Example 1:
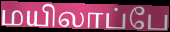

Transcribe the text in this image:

மயிலாப்பே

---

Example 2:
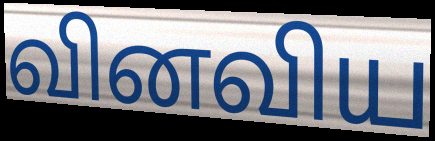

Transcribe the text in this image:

வினவிய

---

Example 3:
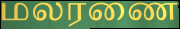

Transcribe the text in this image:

மலரணை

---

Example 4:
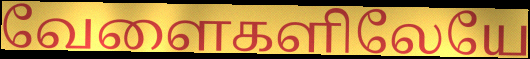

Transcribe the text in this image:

வேளைகளிலேயே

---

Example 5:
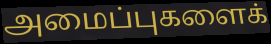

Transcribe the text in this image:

அமைப்புகளைக்